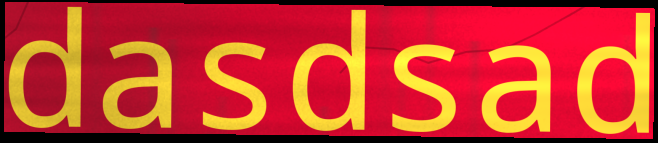
dasdsad